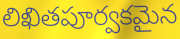
లిఖితపూర్వకమైన